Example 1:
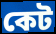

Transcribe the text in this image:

কেট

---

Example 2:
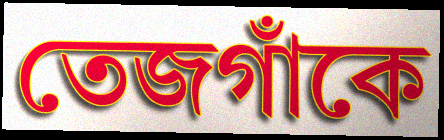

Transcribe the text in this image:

তেজগাঁকে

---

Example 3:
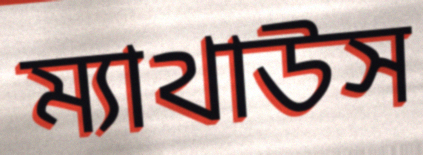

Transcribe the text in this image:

ম্যাথাউস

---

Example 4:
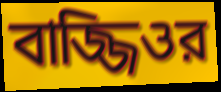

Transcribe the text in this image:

বাজ্জিওর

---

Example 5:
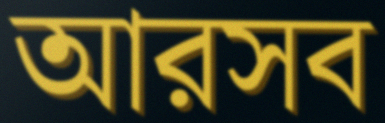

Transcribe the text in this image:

আরসব